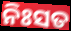
ନିଃସତ